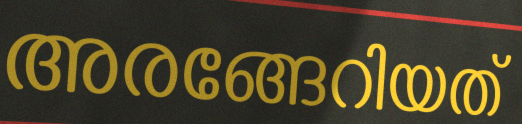
അരങ്ങേറിയത്